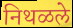
निथळले